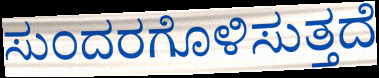
ಸುಂದರಗೊಳಿಸುತ್ತದೆ